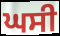
ਘਸੀ